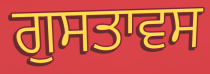
ਗੁਸਤਾਵਸ